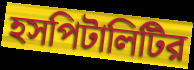
হসপিটালিটির